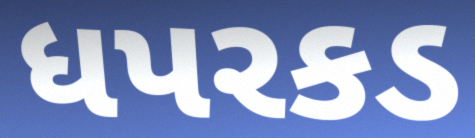
ધપરકડ